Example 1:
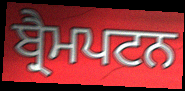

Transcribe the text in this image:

ਬ੍ਰੈਮਪਟਨ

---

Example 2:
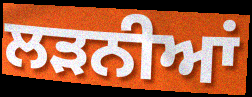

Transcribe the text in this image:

ਲੜਨੀਆਂ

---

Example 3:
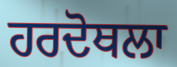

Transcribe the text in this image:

ਹਰਦੋਥਲਾ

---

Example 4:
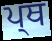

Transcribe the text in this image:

ਪ੍ਥ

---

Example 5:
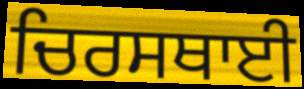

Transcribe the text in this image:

ਚਿਰਸਥਾਈ